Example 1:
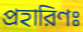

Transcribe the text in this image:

প্রহারিণঃ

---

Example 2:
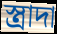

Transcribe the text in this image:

স্ত্রাদা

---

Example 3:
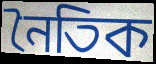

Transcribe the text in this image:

নৈতিক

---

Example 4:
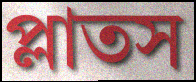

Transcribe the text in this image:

প্লাতস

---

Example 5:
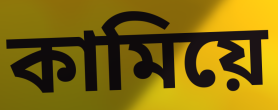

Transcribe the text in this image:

কামিয়ে